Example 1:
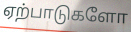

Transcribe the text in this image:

ஏற்பாடுகளோ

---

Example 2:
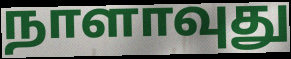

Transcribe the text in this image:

நாளாவுது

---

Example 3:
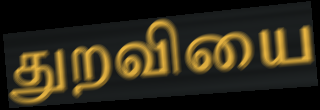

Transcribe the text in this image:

துறவியை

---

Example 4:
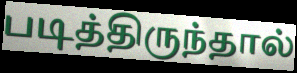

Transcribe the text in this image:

படித்திருந்தால்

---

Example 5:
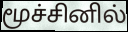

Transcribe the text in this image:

மூச்சினில்